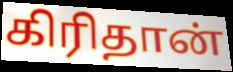
கிரிதான்